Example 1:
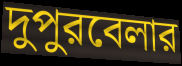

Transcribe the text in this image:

দুপুরবেলার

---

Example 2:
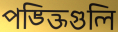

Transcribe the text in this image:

পঙ্ক্তিগুলি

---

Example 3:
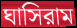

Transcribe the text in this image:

ঘাসিরাম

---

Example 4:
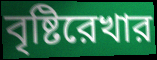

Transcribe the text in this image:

বৃষ্টিরেখার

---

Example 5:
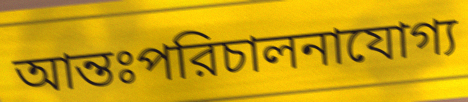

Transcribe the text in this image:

আন্তঃপরিচালনাযোগ্য